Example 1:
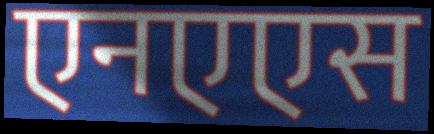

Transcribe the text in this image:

एनएएस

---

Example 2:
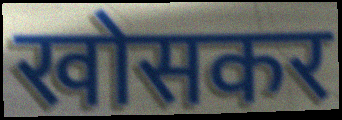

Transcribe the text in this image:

खोसकर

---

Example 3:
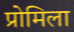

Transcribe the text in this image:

प्रोमिला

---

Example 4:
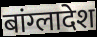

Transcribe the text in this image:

बांग्‍लादेश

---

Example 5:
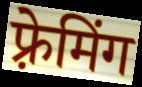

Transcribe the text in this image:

फ़्रेमिंग